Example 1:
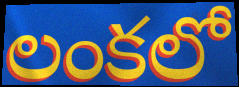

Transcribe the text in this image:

లంకలో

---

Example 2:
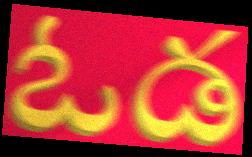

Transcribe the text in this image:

ఓడ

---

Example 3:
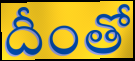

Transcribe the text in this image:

దీంతో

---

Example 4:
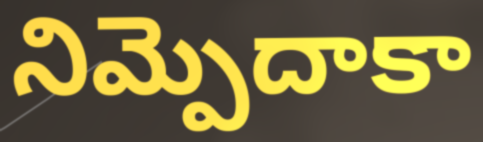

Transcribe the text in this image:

నిమ్పెదాకా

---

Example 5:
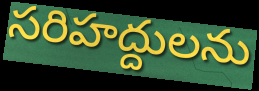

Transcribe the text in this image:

సరిహద్దులను